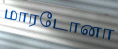
மாரடோனா